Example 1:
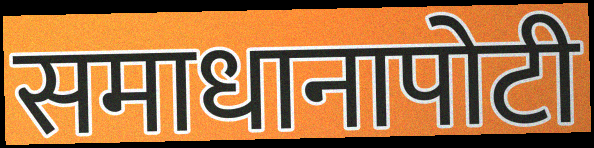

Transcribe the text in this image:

समाधानापोटी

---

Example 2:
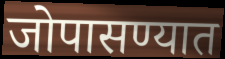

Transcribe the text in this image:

जोपासण्यात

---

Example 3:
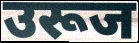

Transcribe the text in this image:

उरूज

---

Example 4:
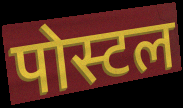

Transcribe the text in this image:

पोस्टल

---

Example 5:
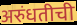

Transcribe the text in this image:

अरुंधतीची